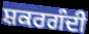
ਸ਼ਕਰਗੰਦੀ